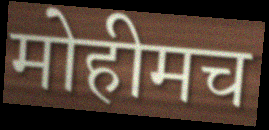
मोहीमच